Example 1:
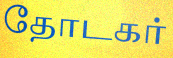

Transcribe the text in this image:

தோடகர்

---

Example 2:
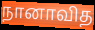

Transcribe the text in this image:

நானாவித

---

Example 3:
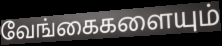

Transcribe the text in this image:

வேங்கைகளையும்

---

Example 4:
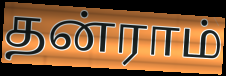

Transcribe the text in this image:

தன்ராம்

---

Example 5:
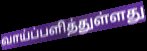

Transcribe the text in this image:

வாய்ப்பளித்துள்ளது